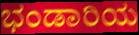
ಭಂಡಾರಿಯ